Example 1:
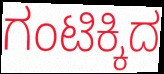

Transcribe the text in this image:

ಗಂಟಿಕ್ಕಿದ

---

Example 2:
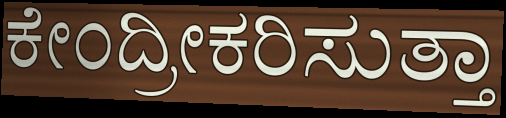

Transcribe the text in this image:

ಕೇಂದ್ರೀಕರಿಸುತ್ತಾ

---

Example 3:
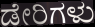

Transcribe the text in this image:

ಡೇರಿಗಳು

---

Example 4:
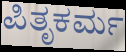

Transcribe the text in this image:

ಪಿತೃಕರ್ಮ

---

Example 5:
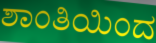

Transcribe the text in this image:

ಶಾಂತಿಯಿಂದ